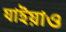
যাইয়াও